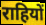
राहियों